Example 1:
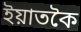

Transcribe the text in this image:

ইয়াতকৈ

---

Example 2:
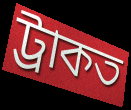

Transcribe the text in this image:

ট্ৰাকত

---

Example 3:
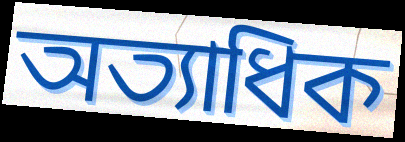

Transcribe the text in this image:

অত্যাধিক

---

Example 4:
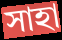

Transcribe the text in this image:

সাহা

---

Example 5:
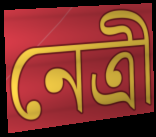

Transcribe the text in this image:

নেত্ৰী